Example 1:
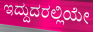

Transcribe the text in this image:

ಇದ್ದುದರಲ್ಲಿಯೇ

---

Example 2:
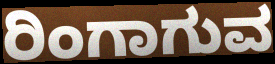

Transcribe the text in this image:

ರಿಂಗಾಗುವ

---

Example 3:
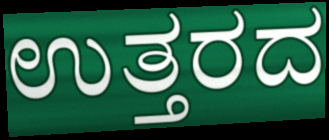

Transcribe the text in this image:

ಉತ್ತರದ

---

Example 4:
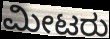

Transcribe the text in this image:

ಮೀಟರು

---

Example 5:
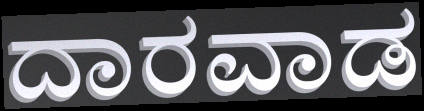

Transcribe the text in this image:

ದಾರವಾಡ